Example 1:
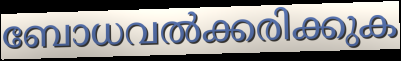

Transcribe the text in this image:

ബോധവൽക്കരിക്കുക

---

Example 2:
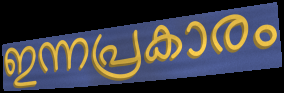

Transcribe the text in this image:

ഇന്നപ്രകാരം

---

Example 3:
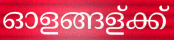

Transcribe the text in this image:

ഓളങ്ങള്ക്ക്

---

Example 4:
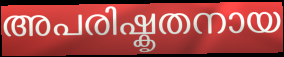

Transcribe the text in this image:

അപരിഷ്കൃതനായ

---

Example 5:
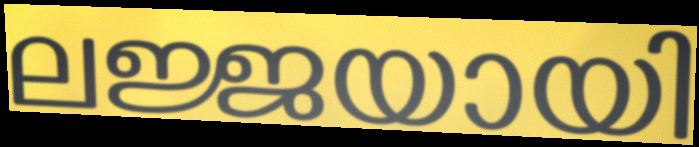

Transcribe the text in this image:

ലജ്ജയായി